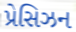
પ્રેસિઝન